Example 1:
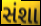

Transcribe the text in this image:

સંશા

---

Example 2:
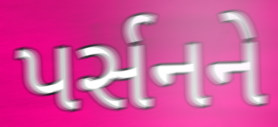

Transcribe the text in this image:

પર્સનને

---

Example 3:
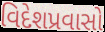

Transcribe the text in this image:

વિદેશપ્રવાસો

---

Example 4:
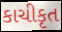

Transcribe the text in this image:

કાચીકૃત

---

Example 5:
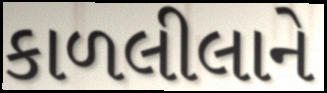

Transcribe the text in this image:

કાળલીલાને